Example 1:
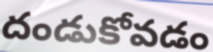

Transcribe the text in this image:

దండుకోవడం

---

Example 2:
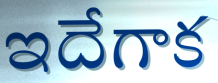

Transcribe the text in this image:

ఇదేగాక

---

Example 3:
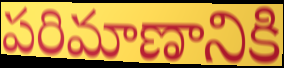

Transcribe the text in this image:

పరిమాణానికి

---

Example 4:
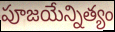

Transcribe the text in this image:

పూజయేన్నిత్యం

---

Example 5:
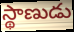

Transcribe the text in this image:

స్థాణుడు